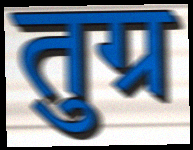
तुग्र